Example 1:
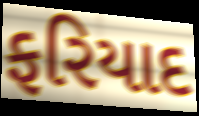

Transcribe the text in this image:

ફરિયાદ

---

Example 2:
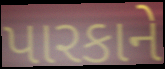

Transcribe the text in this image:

પારકાને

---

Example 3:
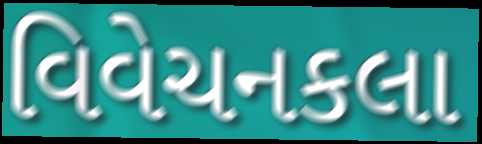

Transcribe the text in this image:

વિવેચનકલા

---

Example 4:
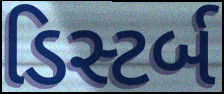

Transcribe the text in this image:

ડિસ્ટર્બ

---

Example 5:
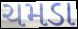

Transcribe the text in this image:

ચમડા